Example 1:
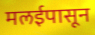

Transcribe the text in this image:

मलईपासून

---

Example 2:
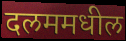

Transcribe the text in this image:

दलममधील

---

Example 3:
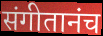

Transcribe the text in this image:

संगीतानंच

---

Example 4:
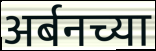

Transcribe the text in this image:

अर्बनच्या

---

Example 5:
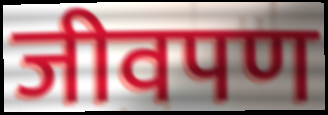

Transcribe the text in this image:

जीवपण